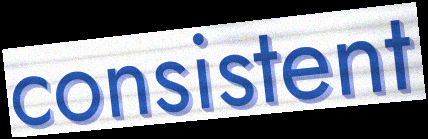
consistent